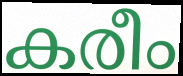
കരീം